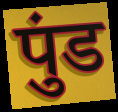
पुंड